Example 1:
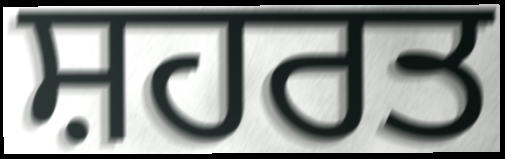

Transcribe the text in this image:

ਸ਼ਹਰਤ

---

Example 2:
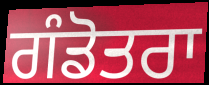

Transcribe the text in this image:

ਗੰਡੋਤਰਾ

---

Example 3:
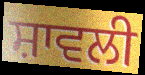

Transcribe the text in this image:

ਸ਼ਾਵਲੀ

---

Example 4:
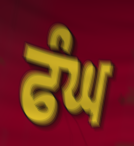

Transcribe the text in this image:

ਫੰਘ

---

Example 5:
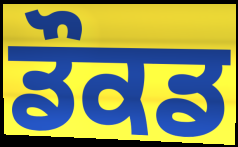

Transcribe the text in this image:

ਡੌਕਡ